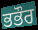
ਭਭੌਰ